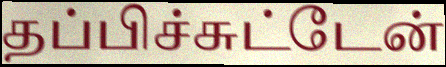
தப்பிச்சுட்டேன்